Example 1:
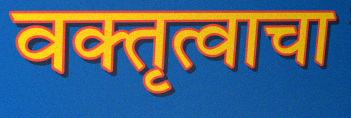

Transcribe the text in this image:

वक्तृत्वाचा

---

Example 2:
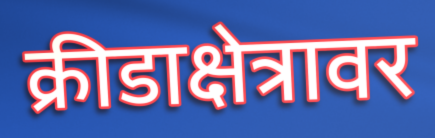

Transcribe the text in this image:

क्रीडाक्षेत्रावर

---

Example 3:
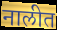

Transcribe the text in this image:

नालीत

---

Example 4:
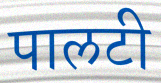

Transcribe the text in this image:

पालटी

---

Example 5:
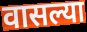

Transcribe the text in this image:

वासल्या